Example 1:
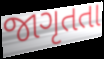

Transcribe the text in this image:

જાગૃતતા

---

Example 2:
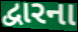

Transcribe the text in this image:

દ્વારના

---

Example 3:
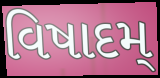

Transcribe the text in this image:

વિષાદમ્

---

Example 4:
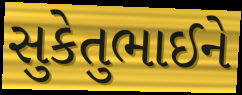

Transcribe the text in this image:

સુકેતુભાઈને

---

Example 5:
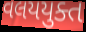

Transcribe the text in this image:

વલયયુક્ત